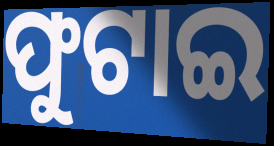
ଫୁଟାଇ